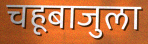
चहूबाजुला